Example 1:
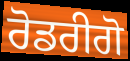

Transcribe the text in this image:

ਰੋਡਰੀਗੋ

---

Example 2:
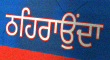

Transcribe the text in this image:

ਠਹਿਰਾਉਂਦਾ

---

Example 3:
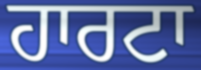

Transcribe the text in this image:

ਹਾਰਟਾ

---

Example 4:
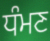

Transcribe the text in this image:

ਧੰਮਣ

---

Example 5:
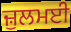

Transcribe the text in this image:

ਜ਼ੁਲਮਈ